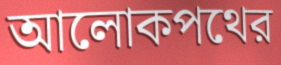
আলোকপথের